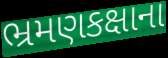
ભ્રમણકક્ષાના